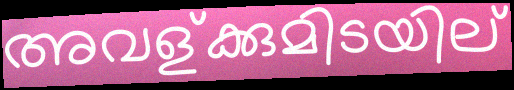
അവള്ക്കുമിടയില്